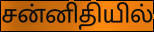
சன்னிதியில்